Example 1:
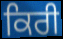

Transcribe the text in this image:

ਕਿਰੀ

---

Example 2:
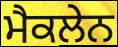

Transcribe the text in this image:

ਮੈਕਲੇਨ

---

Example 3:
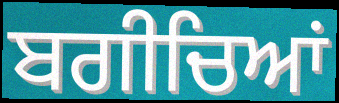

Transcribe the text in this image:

ਬਗੀਚਿਆਂ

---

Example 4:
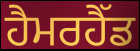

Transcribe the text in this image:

ਹੈਮਰਹੈੱਡ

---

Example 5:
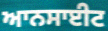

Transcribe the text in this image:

ਆਨਸਾਈਟ